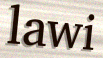
lawi